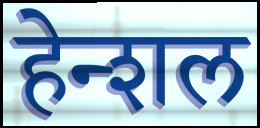
हेन्शल